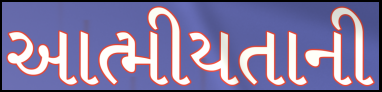
આત્મીયતાની